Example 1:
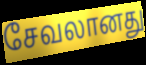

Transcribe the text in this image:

சேவலானது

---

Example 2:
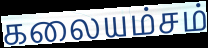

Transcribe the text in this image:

கலையம்சம்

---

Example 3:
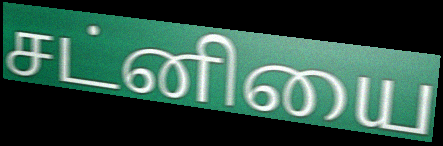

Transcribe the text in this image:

சட்னியை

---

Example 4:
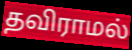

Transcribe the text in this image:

தவிராமல்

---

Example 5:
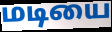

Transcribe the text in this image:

மடியை